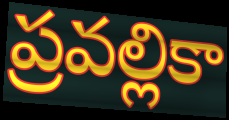
ప్రవల్లికా